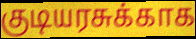
குடியரசுக்காக